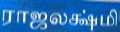
ராஜலக்ஷ்மி